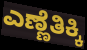
ಎಣ್ಣೆತಿಕ್ಕಿ